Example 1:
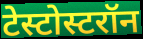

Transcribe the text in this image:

टेस्टोस्टरॉन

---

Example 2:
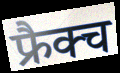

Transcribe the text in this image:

फ्रैक्च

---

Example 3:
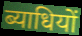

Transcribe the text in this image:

ब्याधियों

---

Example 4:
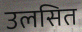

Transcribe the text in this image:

उलसित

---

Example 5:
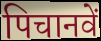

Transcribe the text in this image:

पिचानवें